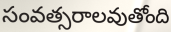
సంవత్సరాలవుతోంది